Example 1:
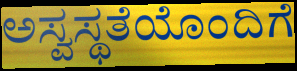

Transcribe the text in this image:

ಅಸ್ವಸ್ಥತೆಯೊಂದಿಗೆ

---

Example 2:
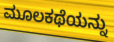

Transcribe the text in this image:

ಮೂಲಕಥೆಯನ್ನು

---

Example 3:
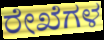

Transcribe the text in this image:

ರೇಖೆಗಳ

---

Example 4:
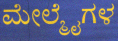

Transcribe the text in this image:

ಮೇಲ್ಮೈಗಳ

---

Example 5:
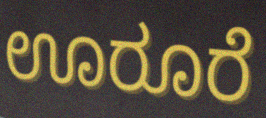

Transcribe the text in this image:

ಊರೂರೆ